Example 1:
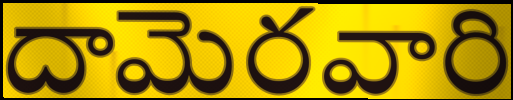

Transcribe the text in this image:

దామెరవారి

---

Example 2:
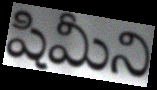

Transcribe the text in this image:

షిమీని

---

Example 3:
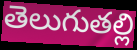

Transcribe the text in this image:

తెలుగుతల్లి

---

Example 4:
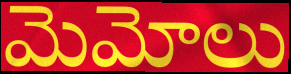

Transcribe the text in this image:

మెమోలు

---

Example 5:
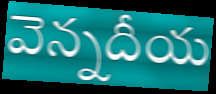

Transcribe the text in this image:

వెన్నదీయ